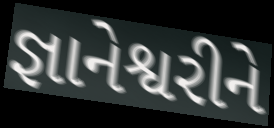
જ્ઞાનેશ્વરીને